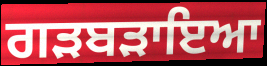
ਗੜਬੜਾਇਆ